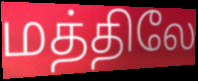
மத்திலே